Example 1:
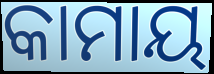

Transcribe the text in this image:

କାମାୟ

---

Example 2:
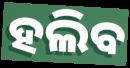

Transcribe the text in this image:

ହଲିବ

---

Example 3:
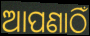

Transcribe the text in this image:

ଆପଣାଠିଁ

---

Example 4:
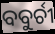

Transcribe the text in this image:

ବବୁର୍ଚୀ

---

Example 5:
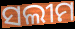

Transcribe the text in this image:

ସଲୀମ